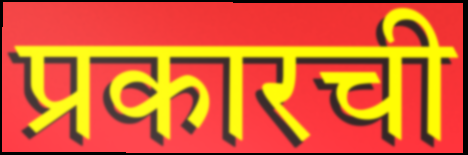
प्रकारची